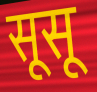
सूसू